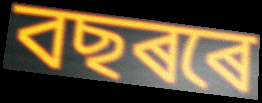
বছৰৰে